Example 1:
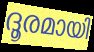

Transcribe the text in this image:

ദൂരമായി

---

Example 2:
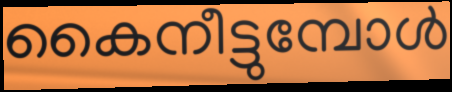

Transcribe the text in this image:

കൈനീട്ടുമ്പോൾ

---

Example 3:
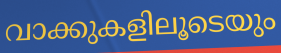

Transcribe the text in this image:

വാക്കുകളിലൂടെയും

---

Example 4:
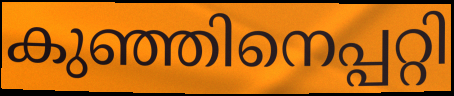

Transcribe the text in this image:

കുഞ്ഞിനെപ്പറ്റി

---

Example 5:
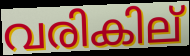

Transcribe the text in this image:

വരികില്